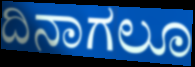
ದಿನಾಗಲೂ